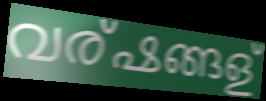
വര്ഷങ്ങള്